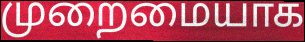
முறைமையாக